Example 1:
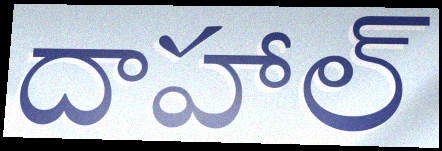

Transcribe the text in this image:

దాహాల్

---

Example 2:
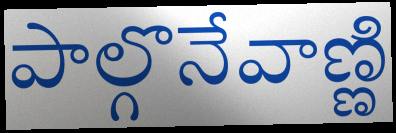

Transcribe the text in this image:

పాల్గొనేవాణ్ణి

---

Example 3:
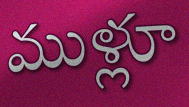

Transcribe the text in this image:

ముళ్లూ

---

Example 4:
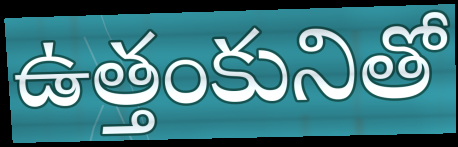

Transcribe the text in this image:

ఉత్తంకునితో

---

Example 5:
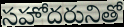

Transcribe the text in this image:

సహోదరునితో